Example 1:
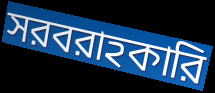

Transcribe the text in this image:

সরবরাহকারি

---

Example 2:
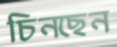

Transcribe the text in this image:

চিনছেন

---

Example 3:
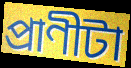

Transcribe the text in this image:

প্রাণীটা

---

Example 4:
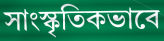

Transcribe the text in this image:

সাংস্কৃতিকভাবে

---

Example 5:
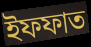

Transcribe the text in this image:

ইফফাত